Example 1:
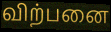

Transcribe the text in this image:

விற்பனை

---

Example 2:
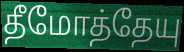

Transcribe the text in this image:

தீமோத்தேயு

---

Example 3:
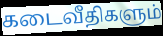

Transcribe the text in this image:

கடைவீதிகளும்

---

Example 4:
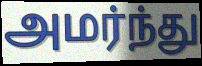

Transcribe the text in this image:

அமர்ந்து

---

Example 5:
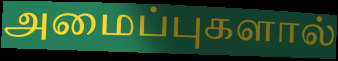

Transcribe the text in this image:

அமைப்புகளால்